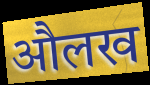
औलख